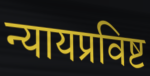
न्यायप्रविष्ट